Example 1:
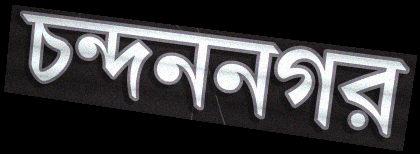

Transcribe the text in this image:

চন্দননগর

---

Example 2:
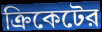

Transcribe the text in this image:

ক্রিকেটের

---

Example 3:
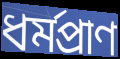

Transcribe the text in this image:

ধর্মপ্রাণ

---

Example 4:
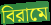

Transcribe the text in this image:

বিরামে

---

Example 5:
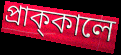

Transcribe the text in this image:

প্রাক্‌কালে